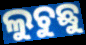
ଲୁଚୁଛୁ